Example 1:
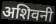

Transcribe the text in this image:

अशिवनी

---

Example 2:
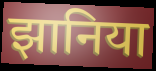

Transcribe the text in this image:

झानिया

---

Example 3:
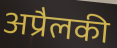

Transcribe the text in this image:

अप्रैलकी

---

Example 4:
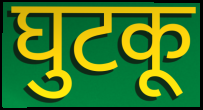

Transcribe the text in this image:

घुटकू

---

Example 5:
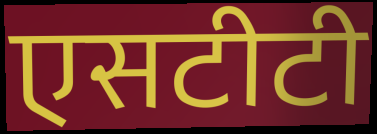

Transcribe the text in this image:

एसटीटी